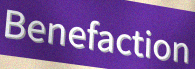
Benefaction